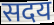
सदय